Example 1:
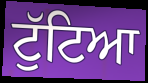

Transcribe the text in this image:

ਟੁੱਟਿਆ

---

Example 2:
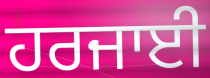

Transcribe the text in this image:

ਹਰਜਾਈ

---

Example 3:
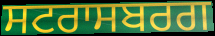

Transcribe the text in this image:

ਸਟਰਾਸਬਰਗ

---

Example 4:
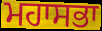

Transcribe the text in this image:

ਮਹਾਸਭਾ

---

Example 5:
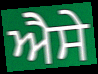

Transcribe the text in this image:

ਐੇਸੇ